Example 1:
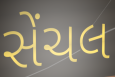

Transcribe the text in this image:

સેંચલ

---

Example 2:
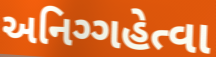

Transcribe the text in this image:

અનિગ્ગહેત્વા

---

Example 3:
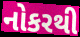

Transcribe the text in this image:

નોકરથી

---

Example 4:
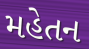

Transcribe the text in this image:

મહેતન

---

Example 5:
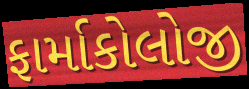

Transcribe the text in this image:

ફાર્માકોલોજી